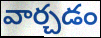
వార్చడం